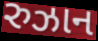
રુઝાન